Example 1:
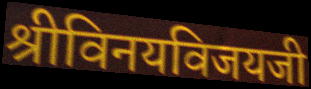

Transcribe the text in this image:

श्रीविनयविजयजी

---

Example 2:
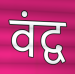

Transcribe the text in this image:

वंद्व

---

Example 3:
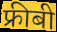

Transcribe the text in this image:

फ्रीबी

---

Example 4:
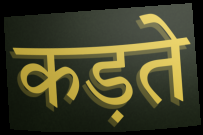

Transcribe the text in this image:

कड़ते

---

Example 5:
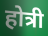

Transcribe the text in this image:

होत्री